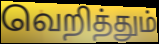
வெறித்தும்